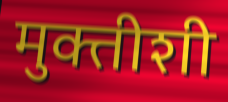
मुक्तीशी